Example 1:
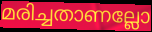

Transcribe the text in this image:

മരിച്ചതാണല്ലോ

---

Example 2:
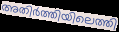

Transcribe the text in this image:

അതിർത്തിയിലെത്തി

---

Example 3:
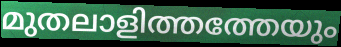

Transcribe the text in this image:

മുതലാളിത്തത്തേയും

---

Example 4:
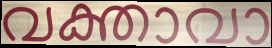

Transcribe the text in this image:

വക്താവാ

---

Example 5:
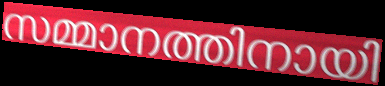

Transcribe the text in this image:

സമ്മാനത്തിനായി